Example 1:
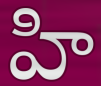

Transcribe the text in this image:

హి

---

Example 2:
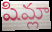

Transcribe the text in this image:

షిమ్లా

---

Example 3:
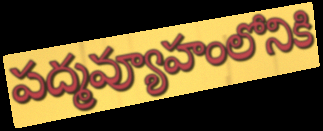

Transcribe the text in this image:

పద్మవ్యూహంలోనికి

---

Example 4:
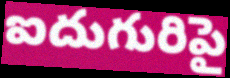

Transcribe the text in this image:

ఐదుగురిపై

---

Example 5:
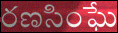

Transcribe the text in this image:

రణసింఘే